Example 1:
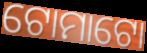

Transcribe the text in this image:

ଟୋମାଟୋ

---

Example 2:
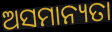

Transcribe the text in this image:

ଅସମାନ୍ୟତା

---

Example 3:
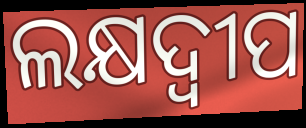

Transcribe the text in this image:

ଲକ୍ଷଦ୍ୱୀପ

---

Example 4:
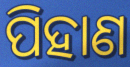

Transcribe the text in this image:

ପିହାଣ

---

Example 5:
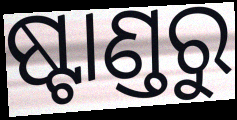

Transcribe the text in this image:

ଷ୍ଟାଣ୍ଡରୁ